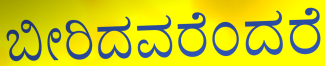
ಬೀರಿದವರೆಂದರೆ